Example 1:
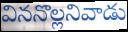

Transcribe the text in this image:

విననొల్లనివాడు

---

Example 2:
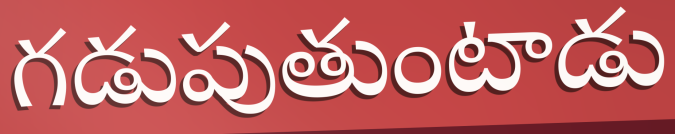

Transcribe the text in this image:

గడుపుతుంటాడు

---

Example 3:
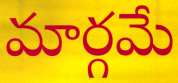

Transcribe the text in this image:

మార్గమే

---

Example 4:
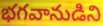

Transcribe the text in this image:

భగవానుడిని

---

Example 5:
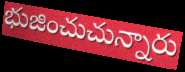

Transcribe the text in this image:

భుజించుచున్నారు